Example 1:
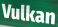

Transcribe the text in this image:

Vulkan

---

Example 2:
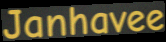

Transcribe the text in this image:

Janhavee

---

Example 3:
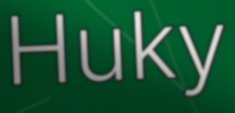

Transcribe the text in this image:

Huky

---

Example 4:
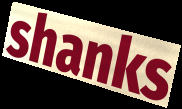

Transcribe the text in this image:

shanks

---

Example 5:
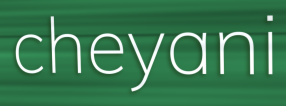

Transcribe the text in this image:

cheyani